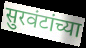
सुरवंटांच्या